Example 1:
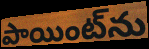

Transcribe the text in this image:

పాయింట్‌ను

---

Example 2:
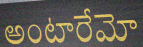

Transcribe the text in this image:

అంటారేమో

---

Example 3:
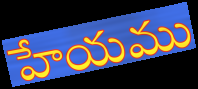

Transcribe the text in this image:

హేయము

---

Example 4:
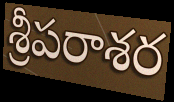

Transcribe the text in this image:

శ్రీపరాశర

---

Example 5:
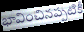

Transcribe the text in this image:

భావించినప్పటికీ